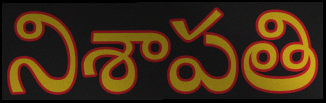
నిశాపతి